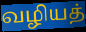
வழியத்